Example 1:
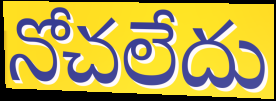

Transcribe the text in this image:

నోచలేదు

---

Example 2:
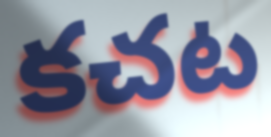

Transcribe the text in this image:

కచట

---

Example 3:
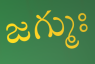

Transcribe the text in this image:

జగ్ముః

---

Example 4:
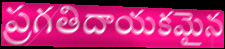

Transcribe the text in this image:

ప్రగతిదాయకమైన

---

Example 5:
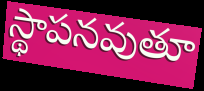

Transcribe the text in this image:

స్థాపనవుతూ